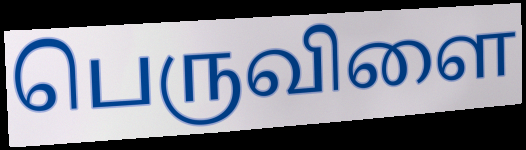
பெருவிளை